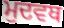
ਮੁਦਵਥ